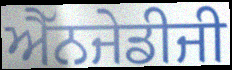
ਐੱਨਜੇਡੀਜੀ